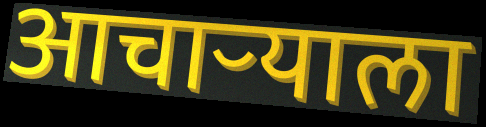
आचाऱ्याला